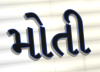
મોતી